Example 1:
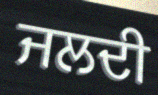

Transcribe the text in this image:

ਜਲਦੀ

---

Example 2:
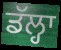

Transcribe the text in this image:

ਡੱਲ੍ਹਾ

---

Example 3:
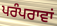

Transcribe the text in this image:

ਪਰੰਪਰਾਵਾਂ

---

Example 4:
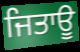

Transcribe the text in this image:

ਜਿਤਾਊ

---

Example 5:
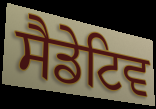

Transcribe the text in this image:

ਸੈਡੇਟਿਵ